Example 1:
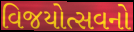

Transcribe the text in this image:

વિજયોત્સવનો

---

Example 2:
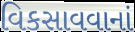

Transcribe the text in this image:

વિકસાવવાનાં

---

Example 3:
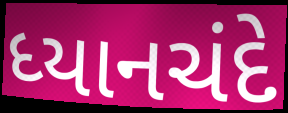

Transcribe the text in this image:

ધ્યાનચંદે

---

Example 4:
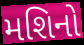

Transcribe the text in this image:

મશિનો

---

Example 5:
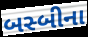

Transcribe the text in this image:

બસ્બીના